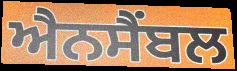
ਐਨਸੈਂਬਲ